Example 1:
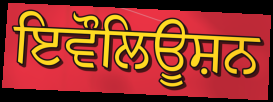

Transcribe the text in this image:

ਇਵੌਲਿਊਸ਼ਨ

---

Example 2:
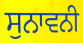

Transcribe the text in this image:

ਸੁਨਾਵਨੀ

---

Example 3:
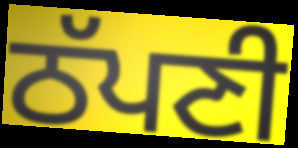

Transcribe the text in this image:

ਠੱਪਣੀ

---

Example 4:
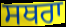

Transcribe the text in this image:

ਸਥਰਾ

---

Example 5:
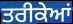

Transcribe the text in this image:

ਤਰੀਕੇਆਂ